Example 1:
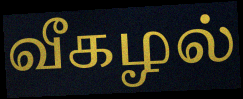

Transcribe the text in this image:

வீகழல்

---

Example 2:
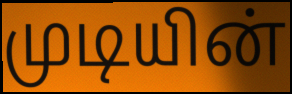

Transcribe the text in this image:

முடியின்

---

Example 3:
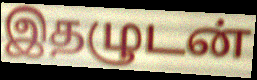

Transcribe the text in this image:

இதழுடன்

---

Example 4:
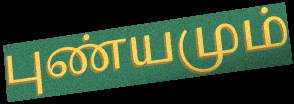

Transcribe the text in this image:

புண்யமும்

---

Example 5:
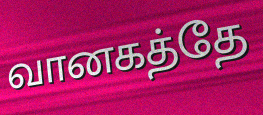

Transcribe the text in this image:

வானகத்தே